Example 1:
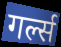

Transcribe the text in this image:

गर्ल्स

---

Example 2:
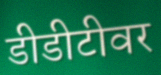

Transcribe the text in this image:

डीडीटीवर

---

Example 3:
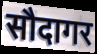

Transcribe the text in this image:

सौदागर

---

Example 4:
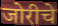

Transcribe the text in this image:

जोरीचे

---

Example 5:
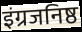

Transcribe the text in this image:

इंग्रजनिष्ठ